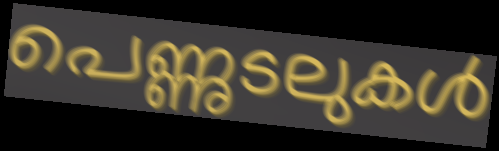
പെണ്ണുടലുകൾ